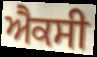
ਐਕਸੀ